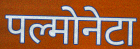
पल्मोनेटा